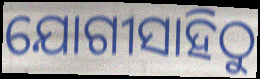
ଯୋଗୀସାହିଠୁ